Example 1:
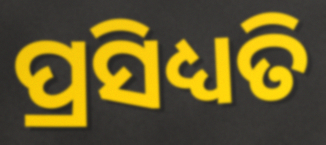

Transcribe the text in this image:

ପ୍ରସିଧ୍ୟତି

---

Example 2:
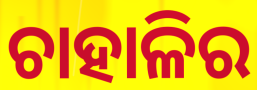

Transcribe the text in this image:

ଚାହାଳିର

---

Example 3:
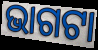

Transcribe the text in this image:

ଭାଗଟା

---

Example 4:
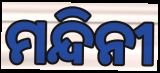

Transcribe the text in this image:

ମନ୍ଦିନୀ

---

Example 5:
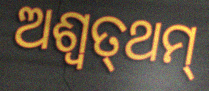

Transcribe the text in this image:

ଅଶ୍ୱତ୍‌ଥମ୍